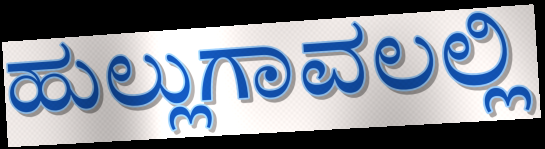
ಹುಲ್ಲುಗಾವಲಲ್ಲಿ